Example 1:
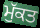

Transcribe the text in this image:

ਮੁੱਕਤ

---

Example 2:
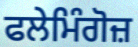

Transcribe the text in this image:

ਫਲੇਮਿੰਗੋਜ਼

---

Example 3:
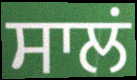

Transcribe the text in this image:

ਸਾਲਂ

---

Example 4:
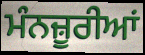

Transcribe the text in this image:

ਮੰਨਜ਼ੂਰੀਆਂ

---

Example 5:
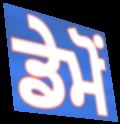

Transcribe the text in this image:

ਡੇਮੋਂ